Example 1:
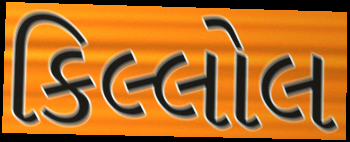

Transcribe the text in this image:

કિલ્લોલ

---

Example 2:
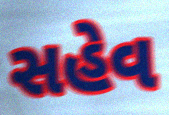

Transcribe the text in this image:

સહેવ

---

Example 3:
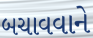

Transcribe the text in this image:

બચાવવાને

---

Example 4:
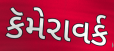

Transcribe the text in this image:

કૅમેરાવર્ક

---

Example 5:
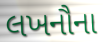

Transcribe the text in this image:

લખનૌના